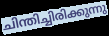
ചിന്തിച്ചിരിക്കുന്നു